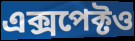
এক্সপেক্টও